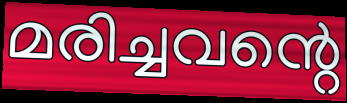
മരിച്ചവന്റെ